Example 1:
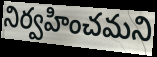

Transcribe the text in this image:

నిర్వహించమని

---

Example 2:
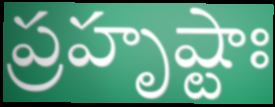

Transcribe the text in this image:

ప్రహృష్టాః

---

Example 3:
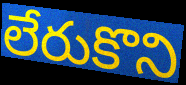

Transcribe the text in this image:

లేరుకొని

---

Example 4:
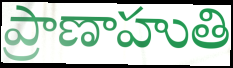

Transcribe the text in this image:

ప్రాణాహుతి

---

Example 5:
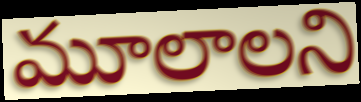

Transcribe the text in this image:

మూలాలని